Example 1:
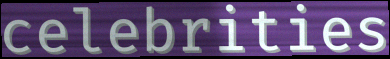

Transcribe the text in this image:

celebrities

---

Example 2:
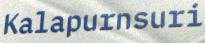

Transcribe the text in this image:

Kalapurnsuri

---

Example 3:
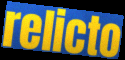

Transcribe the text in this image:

relicto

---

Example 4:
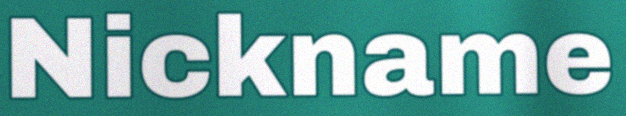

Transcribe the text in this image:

Nickname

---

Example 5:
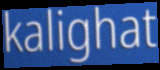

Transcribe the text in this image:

kalighat